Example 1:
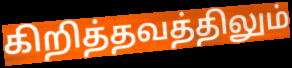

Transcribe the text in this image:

கிறித்தவத்திலும்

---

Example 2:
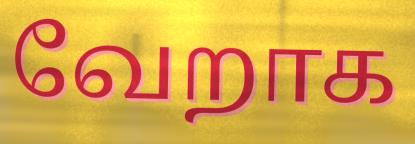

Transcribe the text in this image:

வேறாக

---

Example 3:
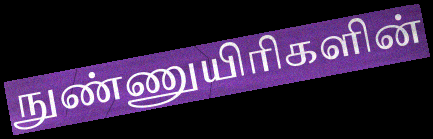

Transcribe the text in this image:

நுண்ணுயிரிகளின்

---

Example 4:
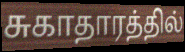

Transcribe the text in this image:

சுகாதாரத்தில்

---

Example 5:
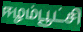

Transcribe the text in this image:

ஈழம்பூட்சி